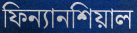
ফিন্যানশিয়াল